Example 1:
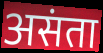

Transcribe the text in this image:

असंता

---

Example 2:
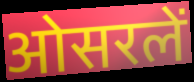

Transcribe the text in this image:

ओसरलें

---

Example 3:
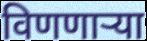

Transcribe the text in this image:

विणणाऱ्या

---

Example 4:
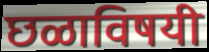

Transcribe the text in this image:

छळाविषयी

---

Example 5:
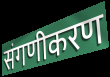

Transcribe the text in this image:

संगणीकरण